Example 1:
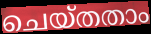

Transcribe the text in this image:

ചെയ്തതാം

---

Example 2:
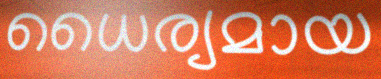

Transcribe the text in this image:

ധൈര്യമായ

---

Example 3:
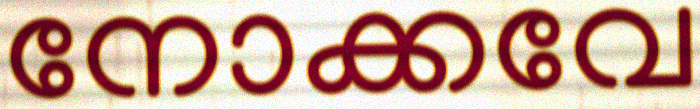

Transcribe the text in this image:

നോക്കവേ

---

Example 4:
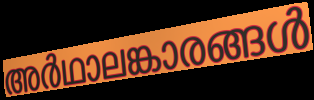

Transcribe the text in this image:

അർഥാലങ്കാരങ്ങൾ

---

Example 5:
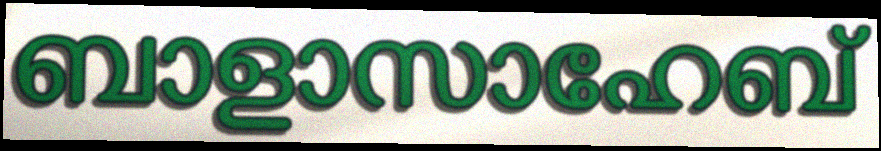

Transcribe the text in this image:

ബാളാസാഹേബ്